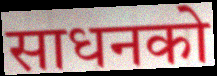
साधनको